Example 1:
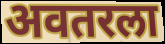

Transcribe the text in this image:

अवतरला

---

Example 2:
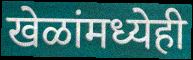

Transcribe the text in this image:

खेळांमध्येही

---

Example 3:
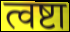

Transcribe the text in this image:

त्वष्टा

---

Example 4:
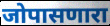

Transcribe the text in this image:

जोपासणारा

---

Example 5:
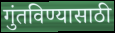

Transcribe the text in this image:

गुंतविण्यासाठी